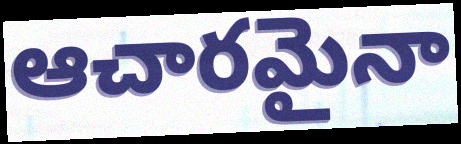
ఆచారమైనా